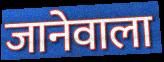
जानेवाला